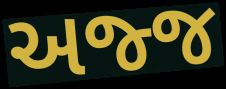
અજ્જ